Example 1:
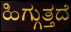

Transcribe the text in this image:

ಹಿಗ್ಗುತ್ತದೆ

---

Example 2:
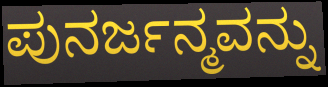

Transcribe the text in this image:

ಪುನರ್ಜನ್ಮವನ್ನು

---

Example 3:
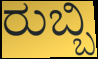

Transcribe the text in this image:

ರುಬ್ಬಿ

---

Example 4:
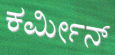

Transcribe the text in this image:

ಕರ್ಮೀನ್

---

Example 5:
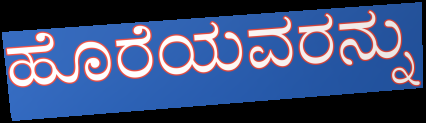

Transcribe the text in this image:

ಹೊರೆಯವರನ್ನು